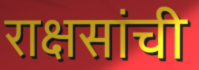
राक्षसांची